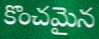
కొంచమైన